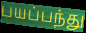
பயப்பந்து